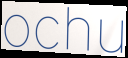
ochu